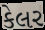
કેલર